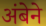
अंबेने